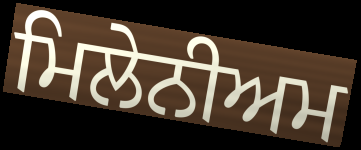
ਮਿਲੇਨੀਅਮ